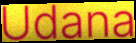
Udana